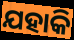
ଯହାକି